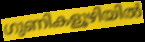
ഗുണികളൂഴിയിൽ